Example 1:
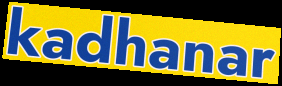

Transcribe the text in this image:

kadhanar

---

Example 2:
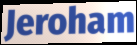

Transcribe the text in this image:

Jeroham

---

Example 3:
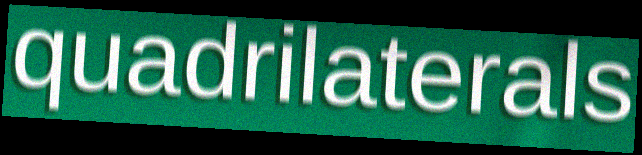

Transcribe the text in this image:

quadrilaterals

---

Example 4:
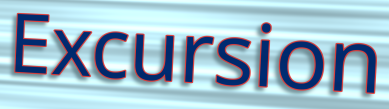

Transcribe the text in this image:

Excursion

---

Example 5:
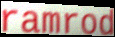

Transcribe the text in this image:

ramrod